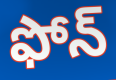
ఫోన్